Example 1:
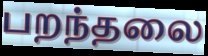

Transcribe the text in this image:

பறந்தலை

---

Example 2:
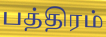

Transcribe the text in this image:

பத்திரம்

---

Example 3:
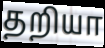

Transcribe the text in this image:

தறியா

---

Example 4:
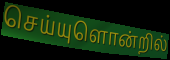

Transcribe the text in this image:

செய்யுளொன்றில்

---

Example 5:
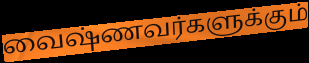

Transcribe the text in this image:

வைஷ்ணவர்களுக்கும்